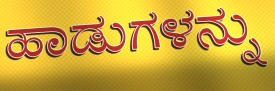
ಹಾಡುಗಳನ್ನು